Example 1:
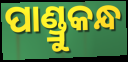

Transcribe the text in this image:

ପାଣ୍ଡ୍ରୁକନ୍ଧ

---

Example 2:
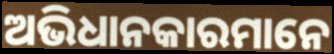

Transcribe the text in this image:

ଅଭିଧାନକାରମାନେ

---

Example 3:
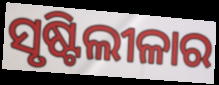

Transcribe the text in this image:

ସୃଷ୍ଟିଲୀଳାର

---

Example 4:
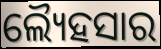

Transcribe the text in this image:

ଲ୍ୟୈହସାର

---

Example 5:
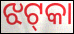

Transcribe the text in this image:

ଝଟ୍‍କା